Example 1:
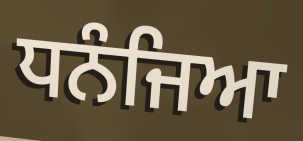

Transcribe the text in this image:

ਧਨੰਜਿਆ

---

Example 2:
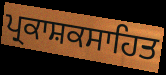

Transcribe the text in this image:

ਪ੍ਰਕਾਸ਼ਕਸਾਹਿਤ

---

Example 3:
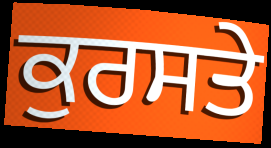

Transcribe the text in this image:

ਕੁਰਸਤੇ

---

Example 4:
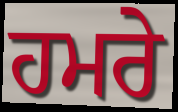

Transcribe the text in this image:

ਹਮਰੇ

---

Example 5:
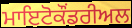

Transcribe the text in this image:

ਮਾਇਟੋਕੌਂਡਰੀਅਲ